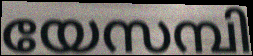
യേസമ്പി